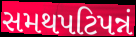
સમથપટિપન્નં